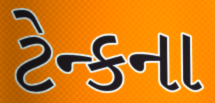
ટેન્કના